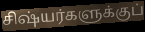
சிஷ்யர்களுக்குப்